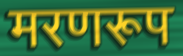
मरणरूप